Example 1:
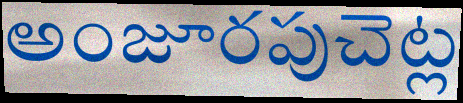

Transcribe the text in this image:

అంజూరపుచెట్ల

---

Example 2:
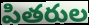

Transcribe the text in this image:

పితరుల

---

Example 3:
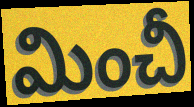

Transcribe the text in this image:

మించీ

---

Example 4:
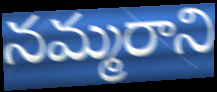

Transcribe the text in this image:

నమ్మరాని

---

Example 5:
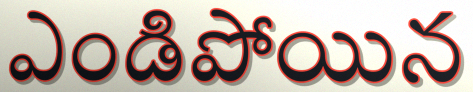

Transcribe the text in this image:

ఎండిపోయిన